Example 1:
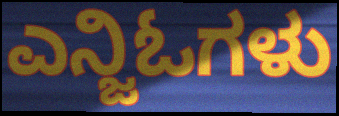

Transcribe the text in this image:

ಎನ್ಜಿಓಗಳು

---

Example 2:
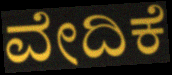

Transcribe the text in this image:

ವೇದಿಕೆ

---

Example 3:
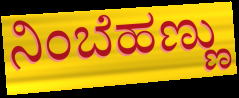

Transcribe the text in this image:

ನಿಂಬೆಹಣ್ಣು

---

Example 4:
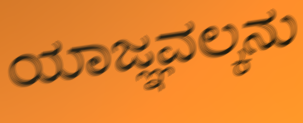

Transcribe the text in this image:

ಯಾಜ್ಞವಲ್ಕನು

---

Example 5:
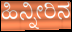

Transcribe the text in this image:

ಹಿನ್ನೀರಿನ